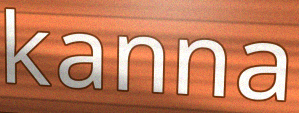
kanna